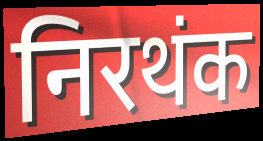
निरथंक